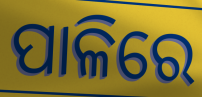
ପାଳିରେ